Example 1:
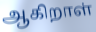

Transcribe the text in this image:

ஆகிறாள்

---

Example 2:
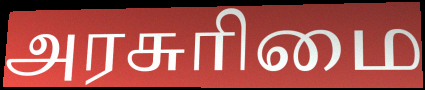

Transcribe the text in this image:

அரசுரிமை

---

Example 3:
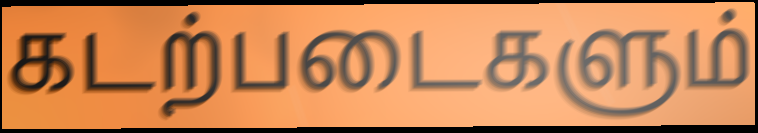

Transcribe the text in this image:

கடற்படைகளும்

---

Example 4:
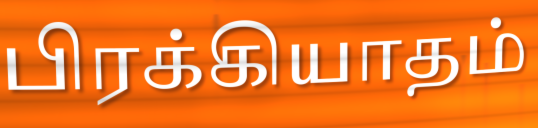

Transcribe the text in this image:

பிரக்கியாதம்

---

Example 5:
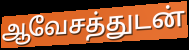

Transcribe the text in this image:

ஆவேசத்துடன்